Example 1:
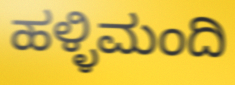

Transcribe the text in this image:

ಹಳ್ಳಿಮಂದಿ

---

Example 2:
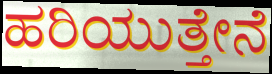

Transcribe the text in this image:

ಹರಿಯುತ್ತೇನೆ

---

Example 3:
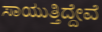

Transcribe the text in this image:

ಸಾಯುತ್ತಿದ್ದೇವೆ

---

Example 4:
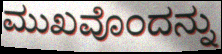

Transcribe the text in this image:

ಮುಖವೊಂದನ್ನು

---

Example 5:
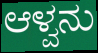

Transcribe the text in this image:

ಆಳ್ವನು